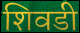
शिवडी